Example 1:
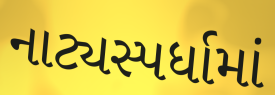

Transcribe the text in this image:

નાટ્યસ્પર્ધામાં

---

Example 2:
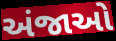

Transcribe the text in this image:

અંજાઓ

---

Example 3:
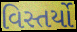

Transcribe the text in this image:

વિસ્તર્યો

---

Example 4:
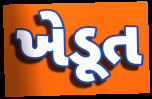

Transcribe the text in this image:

ખેડૂત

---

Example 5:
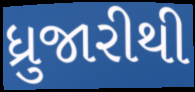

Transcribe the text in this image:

ધ્રુજારીથી